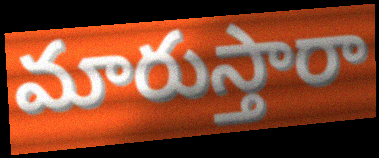
మారుస్తారా